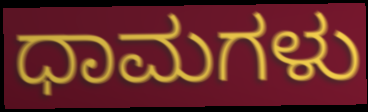
ಧಾಮಗಳು